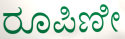
ರೂಪಿಣೀ